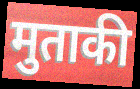
मुताकी